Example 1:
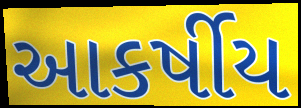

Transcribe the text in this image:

આકર્ષીય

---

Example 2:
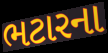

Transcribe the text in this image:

ભટારના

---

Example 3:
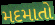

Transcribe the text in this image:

મદમાતો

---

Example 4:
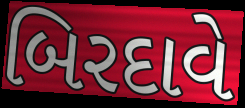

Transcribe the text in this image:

બિરદાવે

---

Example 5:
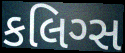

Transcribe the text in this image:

કલિગ્સ